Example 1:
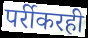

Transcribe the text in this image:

पर्रीकरही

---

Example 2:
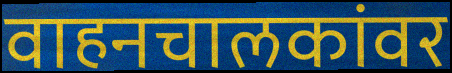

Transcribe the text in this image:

वाहनचालकांवर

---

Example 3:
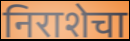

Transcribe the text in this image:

निराशेचा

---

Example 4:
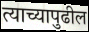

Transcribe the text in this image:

त्याच्यापुढील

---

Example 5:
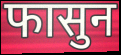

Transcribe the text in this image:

फासुन